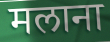
मलाना